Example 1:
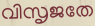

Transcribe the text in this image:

വിസൃജതേ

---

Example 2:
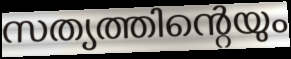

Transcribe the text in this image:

സത്യത്തിന്റെയും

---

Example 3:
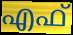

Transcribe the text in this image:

എഫ്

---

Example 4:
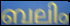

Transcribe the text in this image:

ബലിം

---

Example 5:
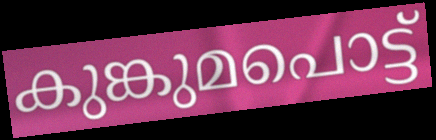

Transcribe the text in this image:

കുങ്കുമപൊട്ട്